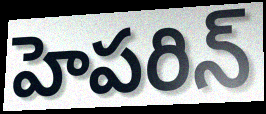
హెపరిన్